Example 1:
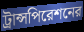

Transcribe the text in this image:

ট্রান্সপিরেশনের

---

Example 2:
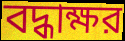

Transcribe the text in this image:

বদ্ধাক্ষর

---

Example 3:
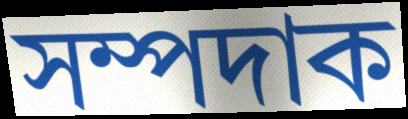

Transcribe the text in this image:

সম্পদাক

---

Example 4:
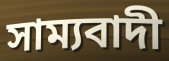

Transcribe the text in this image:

সাম্যবাদী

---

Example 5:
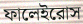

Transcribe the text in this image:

ফালেইরোস